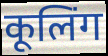
कूलिंग